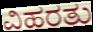
ವಿಹರತು